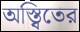
অস্ত্বিতের